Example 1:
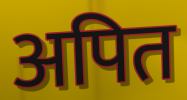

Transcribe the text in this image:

अपित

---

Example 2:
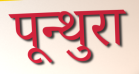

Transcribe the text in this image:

पून्थुरा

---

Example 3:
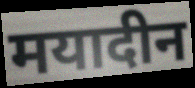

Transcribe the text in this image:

मयादीन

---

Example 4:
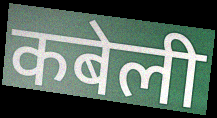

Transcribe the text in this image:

कबेली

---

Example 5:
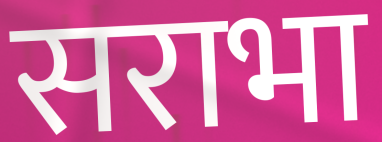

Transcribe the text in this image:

सराभा